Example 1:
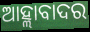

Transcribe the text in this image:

ଆହ୍ଲାବାଦର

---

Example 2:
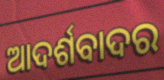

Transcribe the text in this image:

ଆଦର୍ଶବାଦର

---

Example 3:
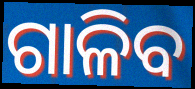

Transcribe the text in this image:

ଗାଳିବ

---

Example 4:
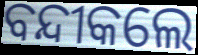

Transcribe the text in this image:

ବନ୍ଦୀକଲେ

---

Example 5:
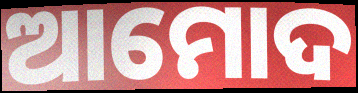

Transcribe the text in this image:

ଆମୋଦ